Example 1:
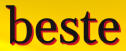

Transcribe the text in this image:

beste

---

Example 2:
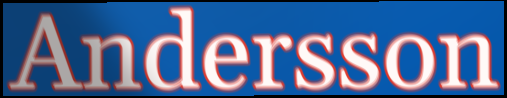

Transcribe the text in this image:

Andersson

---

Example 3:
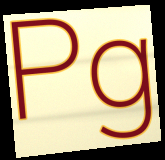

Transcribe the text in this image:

Pg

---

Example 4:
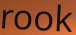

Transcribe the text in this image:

rook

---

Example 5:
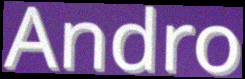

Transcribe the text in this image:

Andro